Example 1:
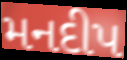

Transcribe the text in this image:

મનદીપ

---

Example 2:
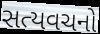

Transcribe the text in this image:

સત્યવચનો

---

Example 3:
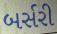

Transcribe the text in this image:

બર્સરી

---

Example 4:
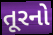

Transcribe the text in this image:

તૂરનો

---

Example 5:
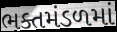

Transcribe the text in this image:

ભક્તમંડળમાં